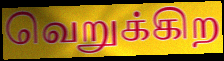
வெறுக்கிற